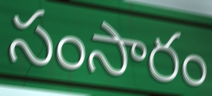
సంసారం